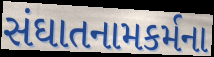
સંઘાતનામકર્મના